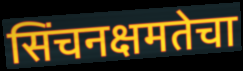
सिंचनक्षमतेचा